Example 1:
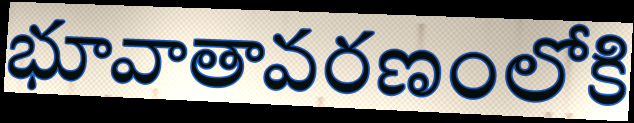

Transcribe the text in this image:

భూవాతావరణంలోకి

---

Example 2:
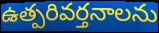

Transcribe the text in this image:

ఉత్పరివర్తనాలను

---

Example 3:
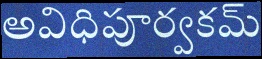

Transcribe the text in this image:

అవిధిపూర్వకమ్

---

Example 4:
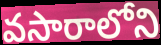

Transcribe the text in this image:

వసారాలోని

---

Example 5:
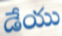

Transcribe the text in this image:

డేయు